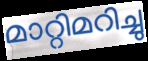
മാറ്റിമറിച്ചു